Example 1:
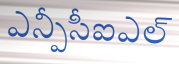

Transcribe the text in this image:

ఎన్పీసీఐఎల్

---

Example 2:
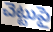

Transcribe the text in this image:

చెట్టుపై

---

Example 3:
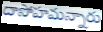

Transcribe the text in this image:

దాసోహమన్నారు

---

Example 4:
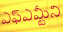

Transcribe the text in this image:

ఎఫ్ఎమ్టీని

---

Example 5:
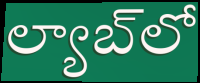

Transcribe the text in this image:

ల్యాబ్‌లో